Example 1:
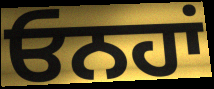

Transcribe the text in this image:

ਓਨਹਾਂ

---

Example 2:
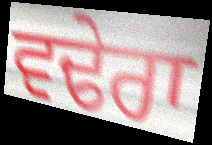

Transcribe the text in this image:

ਵਢੇਰਾ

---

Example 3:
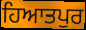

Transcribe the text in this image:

ਹਿਆਤਪੁਰ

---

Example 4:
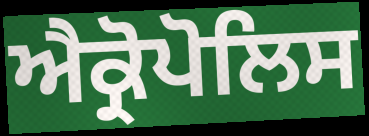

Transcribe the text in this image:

ਐਕ੍ਰੋਪੋਲਿਸ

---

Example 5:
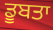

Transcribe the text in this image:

ਡੂਬਤਾ